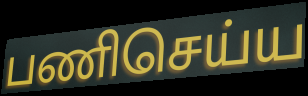
பணிசெய்ய